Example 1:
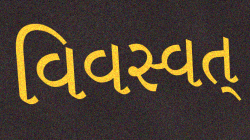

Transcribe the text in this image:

વિવસ્વત્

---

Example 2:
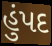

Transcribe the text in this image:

હુંપદ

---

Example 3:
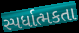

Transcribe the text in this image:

સ્પર્ધાત્મકતા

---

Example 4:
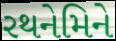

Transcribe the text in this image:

રથનેમિને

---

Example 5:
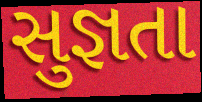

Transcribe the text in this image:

સુજ્ઞતા